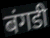
बंगडी